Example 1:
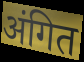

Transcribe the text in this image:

अंगित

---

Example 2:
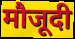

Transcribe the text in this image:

मौजूदी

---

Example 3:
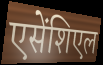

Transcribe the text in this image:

एसेंशिएल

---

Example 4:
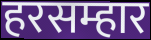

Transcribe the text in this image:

हरसम्हार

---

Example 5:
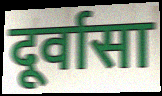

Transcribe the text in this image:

दूर्वासा